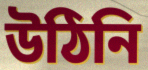
উঠিনি